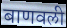
बाणवली